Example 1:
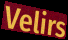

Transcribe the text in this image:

Velirs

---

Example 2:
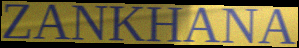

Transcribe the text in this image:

ZANKHANA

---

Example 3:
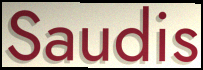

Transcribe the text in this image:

Saudis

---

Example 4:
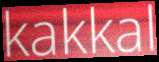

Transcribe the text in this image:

kakkal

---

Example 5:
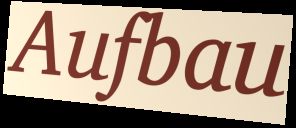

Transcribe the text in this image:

Aufbau